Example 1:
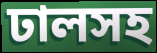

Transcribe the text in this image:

ঢালসহ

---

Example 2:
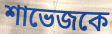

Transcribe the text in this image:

শাভেজকে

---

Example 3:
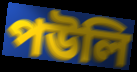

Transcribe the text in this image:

পউলি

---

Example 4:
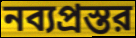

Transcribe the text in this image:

নব্যপ্রস্তর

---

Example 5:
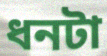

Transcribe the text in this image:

ধনটা